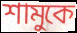
শামুকে